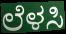
ಲೆಳಸಿ